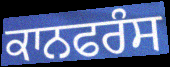
ਕਾਨਫਰੰਸ